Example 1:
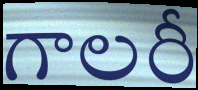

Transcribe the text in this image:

గాలరీ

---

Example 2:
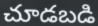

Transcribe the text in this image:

చూడబడి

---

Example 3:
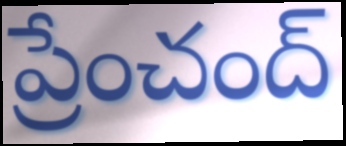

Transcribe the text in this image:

ప్రేంచంద్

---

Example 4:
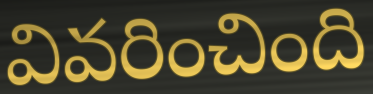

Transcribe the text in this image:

వివరించింది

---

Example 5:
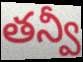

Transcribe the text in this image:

తన్వీ